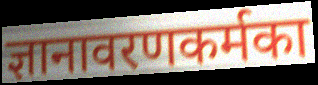
ज्ञानावरणकर्मका